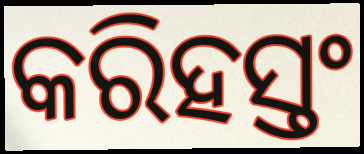
କରିହସ୍ତଂ